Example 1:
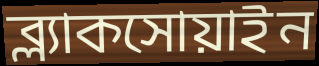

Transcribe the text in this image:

ব্ল্যাকসোয়াইন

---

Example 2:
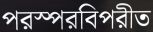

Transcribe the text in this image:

পরস্পরবিপরীত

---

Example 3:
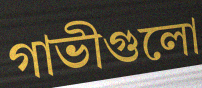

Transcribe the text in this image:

গাভীগুলো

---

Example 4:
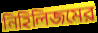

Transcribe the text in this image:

নিহিলিজমের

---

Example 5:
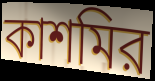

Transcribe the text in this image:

কাশমির